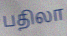
பதிலா